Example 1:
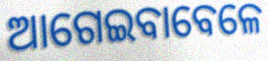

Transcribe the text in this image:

ଆଗେଇବାବେଳେ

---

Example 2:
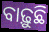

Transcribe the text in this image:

ବାଢ଼ୁଛି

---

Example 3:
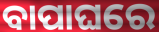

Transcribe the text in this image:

ବାପାଘରେ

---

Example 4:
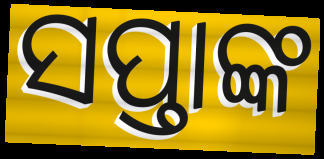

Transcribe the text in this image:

ସପ୍ତାଙ୍କ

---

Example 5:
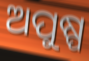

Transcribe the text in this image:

ଅପୁଷ୍ପ